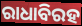
ରାଧାବିରହ